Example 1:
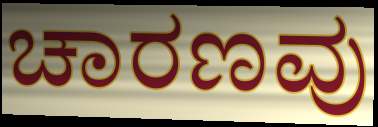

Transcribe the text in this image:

ಚಾರಣವು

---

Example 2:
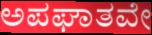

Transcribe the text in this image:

ಅಪಘಾತವೇ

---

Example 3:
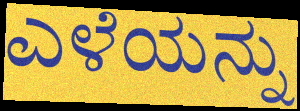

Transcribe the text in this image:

ಎಳೆಯನ್ನು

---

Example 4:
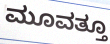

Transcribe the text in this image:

ಮೂವತ್ತೂ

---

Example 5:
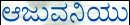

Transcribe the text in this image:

ಆಜುವನಿಯು